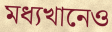
মধ্যখানেও